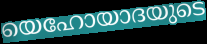
യെഹോയാദയുടെ